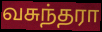
வசுந்தரா